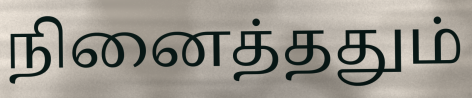
நினைத்ததும்